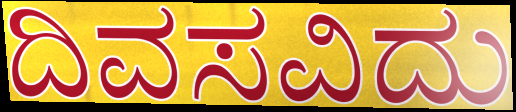
ದಿವಸವಿದು